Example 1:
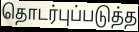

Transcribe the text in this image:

தொடர்புப்படுத்த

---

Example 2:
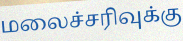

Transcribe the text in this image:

மலைச்சரிவுக்கு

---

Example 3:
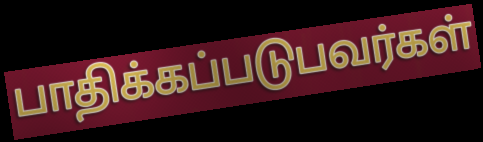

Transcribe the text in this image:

பாதிக்கப்படுபவர்கள்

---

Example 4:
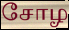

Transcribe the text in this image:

சோழ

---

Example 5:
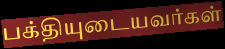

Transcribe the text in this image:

பக்தியுடையவர்கள்